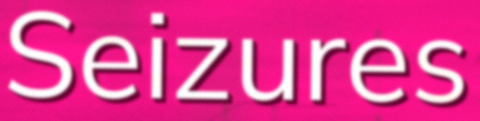
Seizures